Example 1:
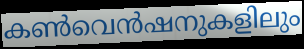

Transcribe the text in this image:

കൺവെൻഷനുകളിലും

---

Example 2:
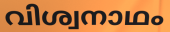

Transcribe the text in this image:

വിശ്വനാഥം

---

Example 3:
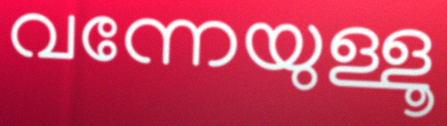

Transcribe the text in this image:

വന്നേയുള്ളൂ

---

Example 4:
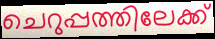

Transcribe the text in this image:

ചെറുപ്പത്തിലേക്ക്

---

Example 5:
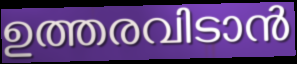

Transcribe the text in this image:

ഉത്തരവിടാൻ